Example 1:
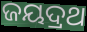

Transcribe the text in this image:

ଜୟଦ୍ରଥ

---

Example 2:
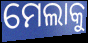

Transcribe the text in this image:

ମେଲାକୁ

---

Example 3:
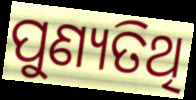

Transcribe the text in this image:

ପୁଣ୍ୟତିଥି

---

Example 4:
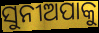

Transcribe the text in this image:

ସୁନୀଅପାକୁ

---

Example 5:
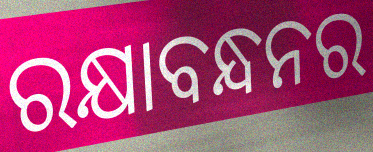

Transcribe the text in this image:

ରକ୍ଷାବନ୍ଧନର